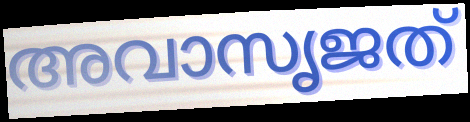
അവാസൃജത്